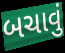
બચાવું